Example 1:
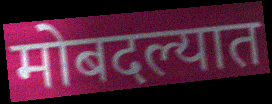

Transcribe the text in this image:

मोबदल्यात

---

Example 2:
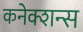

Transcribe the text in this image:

कनेक्शन्स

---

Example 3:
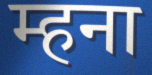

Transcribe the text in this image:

म्हना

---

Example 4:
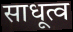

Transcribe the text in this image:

साधूत्व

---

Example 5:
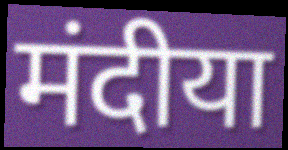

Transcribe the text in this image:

मंदीया